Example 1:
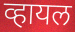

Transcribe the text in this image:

व्हायल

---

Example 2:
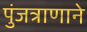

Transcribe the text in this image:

पुंजत्राणाने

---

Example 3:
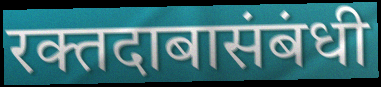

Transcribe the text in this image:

रक्तदाबासंबंधी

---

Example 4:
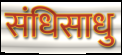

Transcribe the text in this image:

संधिसाधु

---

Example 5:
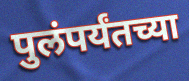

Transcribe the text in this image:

पुलंपर्यंतच्या